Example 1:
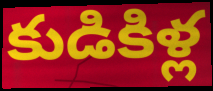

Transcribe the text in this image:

కుడికిళ్ల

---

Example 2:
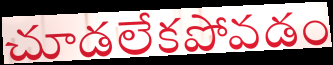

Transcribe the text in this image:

చూడలేకపోవడం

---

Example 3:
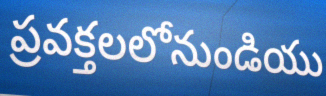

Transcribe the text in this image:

ప్రవక్తలలోనుండియు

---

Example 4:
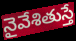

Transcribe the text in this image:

నైవేశితుస్తే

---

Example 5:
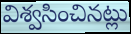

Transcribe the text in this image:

విశ్వసించినట్లు